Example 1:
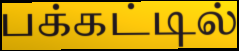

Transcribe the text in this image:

பக்கட்டில்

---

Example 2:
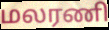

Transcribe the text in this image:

மலரணி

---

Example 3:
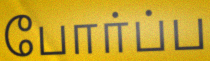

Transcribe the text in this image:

போர்ப்ப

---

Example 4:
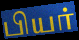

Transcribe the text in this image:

பியர்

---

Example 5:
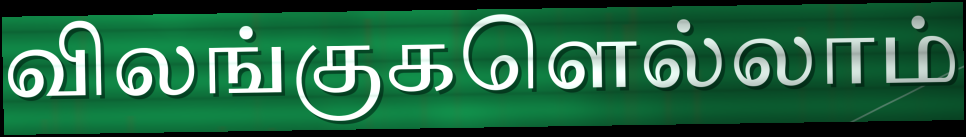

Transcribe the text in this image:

விலங்குகளெல்லாம்